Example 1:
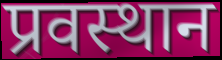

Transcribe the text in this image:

प्रवस्थान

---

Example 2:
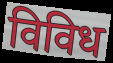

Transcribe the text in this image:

विविध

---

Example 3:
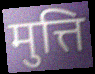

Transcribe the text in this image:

मुत्ति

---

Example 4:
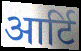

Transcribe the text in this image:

आर्टि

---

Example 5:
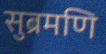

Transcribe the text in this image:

सुब्रमणि